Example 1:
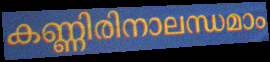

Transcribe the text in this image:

കണ്ണിരിനാലന്ധമാം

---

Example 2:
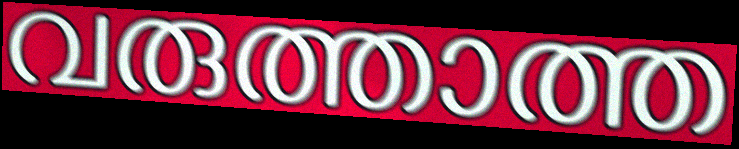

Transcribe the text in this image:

വരുത്താത്ത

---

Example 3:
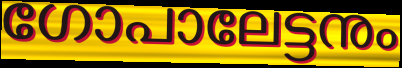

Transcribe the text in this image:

ഗോപാലേട്ടനും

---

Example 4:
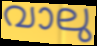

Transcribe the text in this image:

വാലു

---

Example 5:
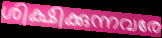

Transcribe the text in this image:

ശിക്ഷിക്കുന്നവരേ